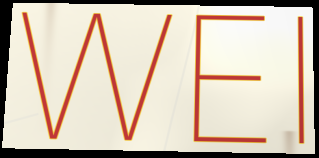
WEI